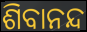
ଶିବାନନ୍ଦ